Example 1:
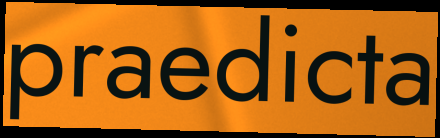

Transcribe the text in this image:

praedicta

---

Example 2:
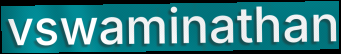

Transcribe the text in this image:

vswaminathan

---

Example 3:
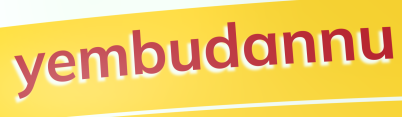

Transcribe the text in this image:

yembudannu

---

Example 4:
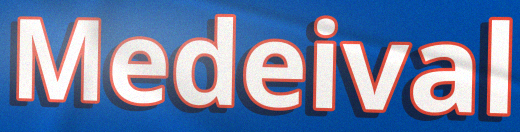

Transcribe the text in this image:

Medeival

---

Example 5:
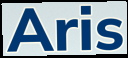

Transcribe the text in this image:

Aris